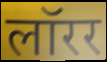
लॉरर